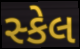
સ્કેલ